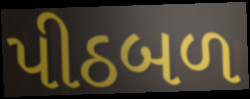
પીઠબળ